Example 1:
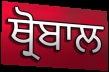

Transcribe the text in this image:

ਥ੍ਰੋਬਾਲ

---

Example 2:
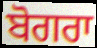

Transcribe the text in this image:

ਬੋਗਰਾ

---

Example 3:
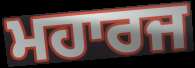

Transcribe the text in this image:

ਮਹਾਰਜ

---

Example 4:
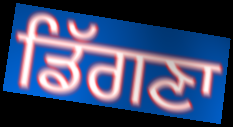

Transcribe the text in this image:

ਡਿੱਗਣਾ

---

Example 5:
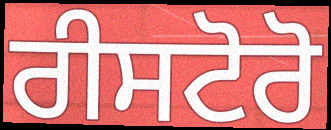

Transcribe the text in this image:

ਰੀਸਟੋਰੋ